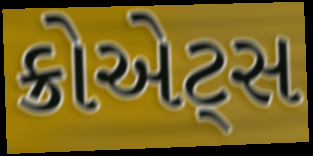
ક્રોએટ્સ